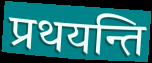
प्रथयन्ति